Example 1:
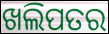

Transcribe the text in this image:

ଖଲିପତର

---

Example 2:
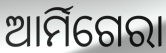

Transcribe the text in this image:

ଆର୍ମିଗେରା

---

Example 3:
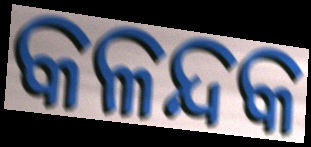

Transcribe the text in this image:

କଳନ୍ଦକ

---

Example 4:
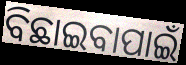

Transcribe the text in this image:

ବିଛାଇବାପାଇଁ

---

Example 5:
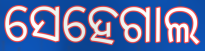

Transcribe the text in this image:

ସେହେଗାଲ